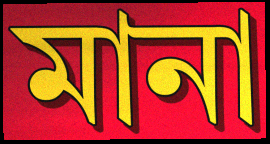
মানা